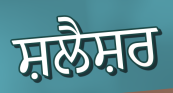
ਸ਼ਲੈਸ਼ਰ